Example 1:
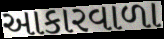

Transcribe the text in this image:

આકારવાળા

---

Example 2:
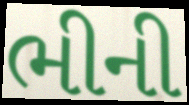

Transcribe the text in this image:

ભીની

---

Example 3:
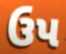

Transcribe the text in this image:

ઉપ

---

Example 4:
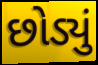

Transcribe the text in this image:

છોડ્યું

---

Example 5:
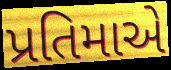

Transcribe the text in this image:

પ્રતિમાએ